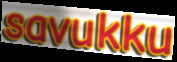
savukku